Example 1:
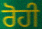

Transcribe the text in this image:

ਰੋਹੀ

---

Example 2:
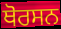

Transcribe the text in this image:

ਥੋਰਸਨ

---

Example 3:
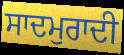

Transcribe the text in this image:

ਸਾਦਮੁਰਾਦੀ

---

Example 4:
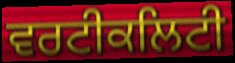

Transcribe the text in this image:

ਵਰਟੀਕਲਿਟੀ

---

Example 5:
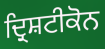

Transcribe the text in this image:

ਦ੍ਰਿਸ਼ਟੀਕੋਨ